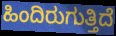
ಹಿಂದಿರುಗುತ್ತಿದೆ